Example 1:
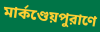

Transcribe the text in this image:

মার্কণ্ডেয়পুরাণে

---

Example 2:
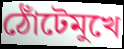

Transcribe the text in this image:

ঠোঁটেমুখে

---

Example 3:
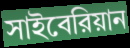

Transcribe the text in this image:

সাইবেরিয়ান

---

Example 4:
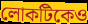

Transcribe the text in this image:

লোকটিকেও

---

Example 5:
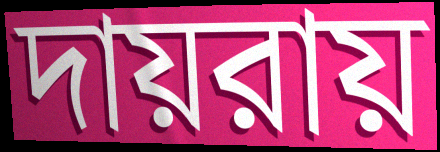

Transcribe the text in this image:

দায়রায়